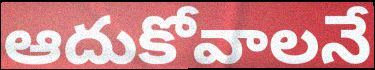
ఆదుకోవాలనే